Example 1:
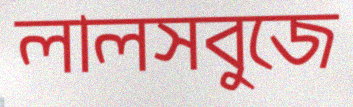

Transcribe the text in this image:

লালসবুজে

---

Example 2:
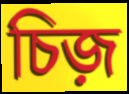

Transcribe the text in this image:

চিজ়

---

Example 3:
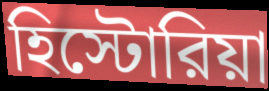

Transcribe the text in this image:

হিস্টোরিয়া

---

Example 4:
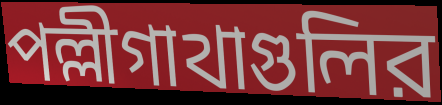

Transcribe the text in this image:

পল্লীগাথাগুলির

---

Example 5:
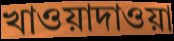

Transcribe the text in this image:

খাওয়াদাওয়া